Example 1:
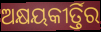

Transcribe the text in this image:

ଅକ୍ଷୟକୀର୍ତ୍ତିର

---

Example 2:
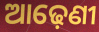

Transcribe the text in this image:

ଆଢ଼େଣୀ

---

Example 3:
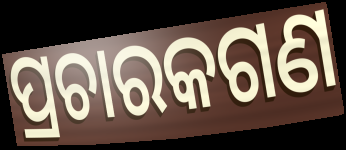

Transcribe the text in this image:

ପ୍ରଚାରକଗଣ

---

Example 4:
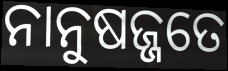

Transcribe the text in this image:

ନାନୁଷଜ୍ଜତେ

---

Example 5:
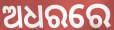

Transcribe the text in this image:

ଅଧରରେ